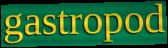
gastropod